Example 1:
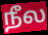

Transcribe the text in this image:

நீல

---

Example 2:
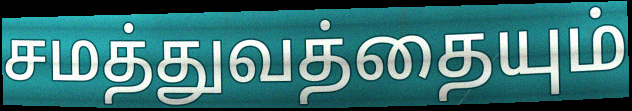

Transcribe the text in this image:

சமத்துவத்தையும்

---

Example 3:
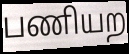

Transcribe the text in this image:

பணியற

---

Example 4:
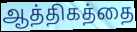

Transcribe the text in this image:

ஆத்திகத்தை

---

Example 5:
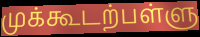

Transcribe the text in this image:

முக்கூடற்பள்ளு